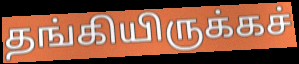
தங்கியிருக்கச்